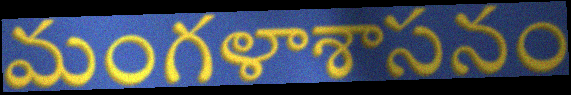
మంగళాశాసనం